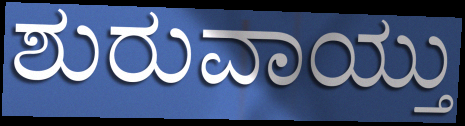
ಶುರುವಾಯ್ತು